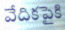
వేదికపైకి